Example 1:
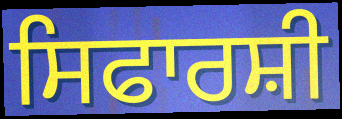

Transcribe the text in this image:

ਸਿਫਾਰਸ਼ੀ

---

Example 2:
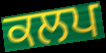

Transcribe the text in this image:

ਕਲਪ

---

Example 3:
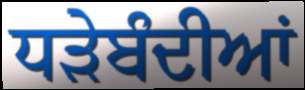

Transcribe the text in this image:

ਧੜੇਬੰਦੀਆਂ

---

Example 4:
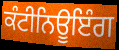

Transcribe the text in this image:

ਕੰਟੀਨਿਊਇੰਗ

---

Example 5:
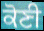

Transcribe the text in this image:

ਕੋਣੀ